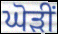
ਘੋੜੀਂ